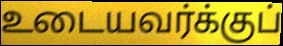
உடையவர்க்குப்